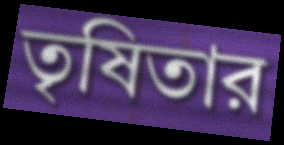
তৃষিতার